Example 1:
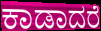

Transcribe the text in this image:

ಕಾಡಾದರೆ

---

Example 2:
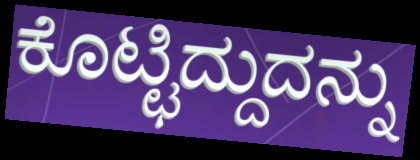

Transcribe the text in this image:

ಕೊಟ್ಟಿದ್ದುದನ್ನು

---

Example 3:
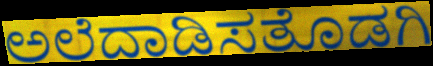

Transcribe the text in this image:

ಅಲೆದಾಡಿಸತೊಡಗಿ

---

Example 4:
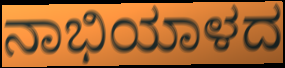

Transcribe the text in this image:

ನಾಭಿಯಾಳದ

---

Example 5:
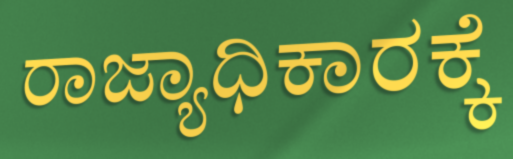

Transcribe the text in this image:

ರಾಜ್ಯಾಧಿಕಾರಕ್ಕೆ